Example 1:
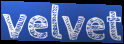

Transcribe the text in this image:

velvet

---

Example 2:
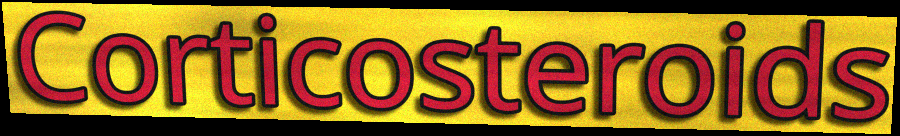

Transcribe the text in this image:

Corticosteroids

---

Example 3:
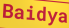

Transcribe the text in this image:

Baidya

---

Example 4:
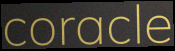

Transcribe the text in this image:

coracle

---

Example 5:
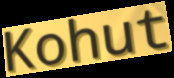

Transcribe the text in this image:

Kohut